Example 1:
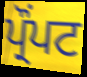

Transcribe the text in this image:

ਪ੍ਰੌੰਪਟ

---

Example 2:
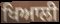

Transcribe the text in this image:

ਖਿਆਲੀ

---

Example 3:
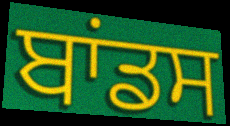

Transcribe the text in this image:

ਬਾਂਡਸ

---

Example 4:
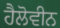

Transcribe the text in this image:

ਹੈਲੋਵੀਨ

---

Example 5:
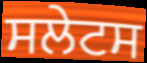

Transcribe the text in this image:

ਸਲੇਟਸ